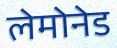
लेमोनेड